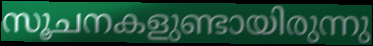
സൂചനകളുണ്ടായിരുന്നു